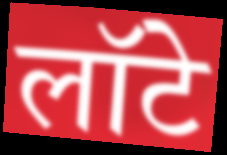
लॉटे